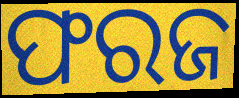
ଫରଜ